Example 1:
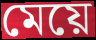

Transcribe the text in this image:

মেয়ে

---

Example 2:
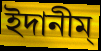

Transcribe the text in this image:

ইদানীম্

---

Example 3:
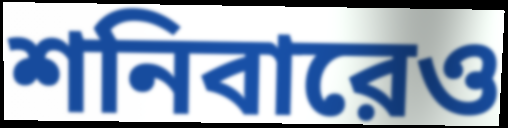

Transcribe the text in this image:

শনিবারেও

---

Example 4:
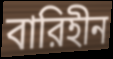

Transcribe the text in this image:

বারিহীন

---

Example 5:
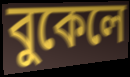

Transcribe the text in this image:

বুকেলে